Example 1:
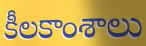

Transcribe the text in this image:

కీలకాంశాలు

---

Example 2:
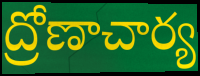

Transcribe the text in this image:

ద్రోణాచార్య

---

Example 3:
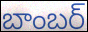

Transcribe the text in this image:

బాంబర్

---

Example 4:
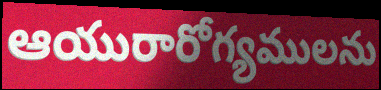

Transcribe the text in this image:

ఆయురారోగ్యములను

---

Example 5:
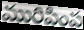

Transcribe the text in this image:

మురిపింప